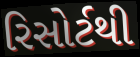
રિસોર્ટથી